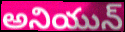
అనియున్